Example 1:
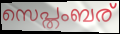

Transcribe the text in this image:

സെപ്തംബര്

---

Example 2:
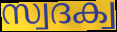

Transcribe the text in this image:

സ്വദക്വ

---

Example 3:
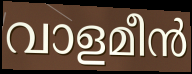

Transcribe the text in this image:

വാളമീൻ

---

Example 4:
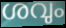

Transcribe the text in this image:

ശവും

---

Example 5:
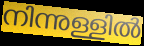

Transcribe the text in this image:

നിന്നുള്ളിൽ